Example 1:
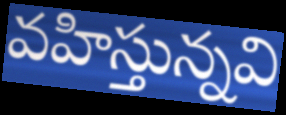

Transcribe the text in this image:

వహిస్తున్నవి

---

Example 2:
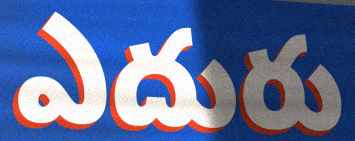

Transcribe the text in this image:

ఎదురు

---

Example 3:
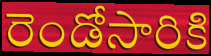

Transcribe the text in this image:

రెండోసారికి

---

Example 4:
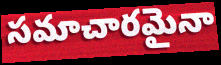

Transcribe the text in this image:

సమాచారమైనా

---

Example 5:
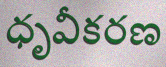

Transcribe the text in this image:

ధృవీకరణ